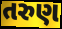
તરુણ